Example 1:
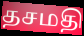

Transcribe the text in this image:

தசமதி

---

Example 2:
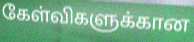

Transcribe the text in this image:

கேள்விகளுக்கான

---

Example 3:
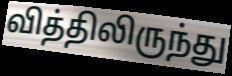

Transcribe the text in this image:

வித்திலிருந்து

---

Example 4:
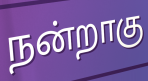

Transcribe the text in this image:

நன்றாகு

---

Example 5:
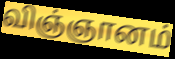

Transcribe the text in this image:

விஞ்ஞானம்